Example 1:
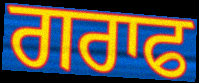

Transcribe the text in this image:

ਗਰਾਫ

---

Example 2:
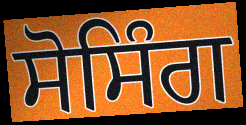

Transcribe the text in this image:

ਸੋਸਿੰਗ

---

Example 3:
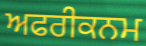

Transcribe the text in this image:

ਅਫਰੀਕਨਮ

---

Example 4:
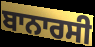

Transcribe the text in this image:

ਬਾਨਾਰਸੀ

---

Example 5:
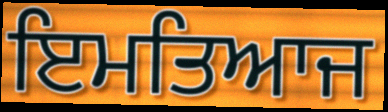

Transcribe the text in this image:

ਇਮਤਿਆਜ